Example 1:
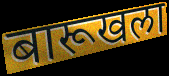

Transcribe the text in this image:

बारूखला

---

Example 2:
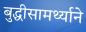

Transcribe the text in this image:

बुद्धीसामर्थ्याने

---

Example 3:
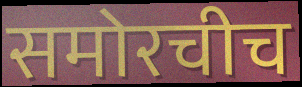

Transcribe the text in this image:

समोरचीच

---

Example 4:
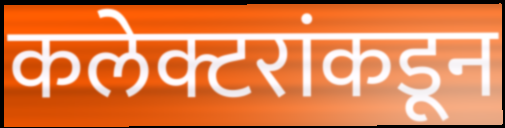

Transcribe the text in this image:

कलेक्टरांकडून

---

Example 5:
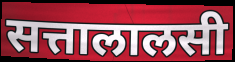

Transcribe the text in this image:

सत्तालालसी